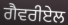
ਗੈਵਰੀਏਲ